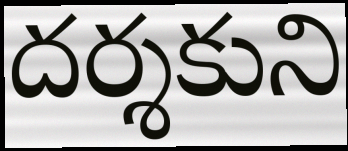
దర్శకుని